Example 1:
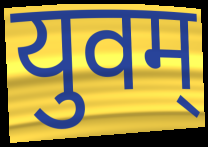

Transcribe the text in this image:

युवम्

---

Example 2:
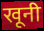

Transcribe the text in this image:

खूनी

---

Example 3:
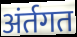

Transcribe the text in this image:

अंर्तगत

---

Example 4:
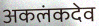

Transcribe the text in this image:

अकलंकदेव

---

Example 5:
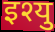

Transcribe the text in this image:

इश्यु